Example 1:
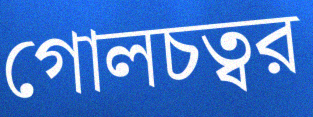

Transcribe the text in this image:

গোলচত্বর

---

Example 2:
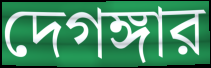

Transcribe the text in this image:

দেগঙ্গার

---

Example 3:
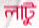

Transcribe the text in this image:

লাটু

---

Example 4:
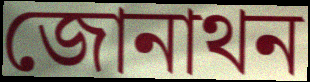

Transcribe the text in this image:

জোনাথন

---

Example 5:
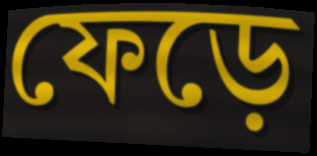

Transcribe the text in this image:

ফেড়ে